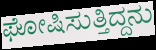
ಘೋಷಿಸುತ್ತಿದ್ದನು